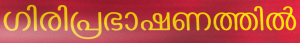
ഗിരിപ്രഭാഷണത്തിൽ